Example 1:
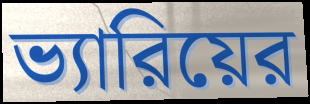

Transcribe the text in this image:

ভ্যারিয়ের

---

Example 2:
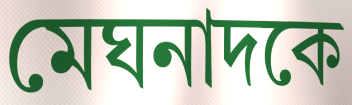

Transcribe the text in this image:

মেঘনাদকে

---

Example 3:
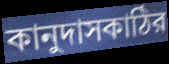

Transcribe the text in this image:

কানুদাসকাঠির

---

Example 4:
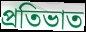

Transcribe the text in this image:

প্রতিভাত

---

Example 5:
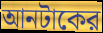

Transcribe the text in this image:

আনটাকের